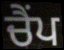
ਚੈਂਪ